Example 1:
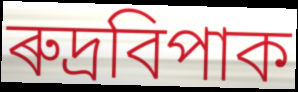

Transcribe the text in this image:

ৰুদ্ৰবিপাক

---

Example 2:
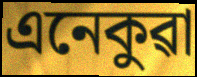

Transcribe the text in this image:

এনেকুৱা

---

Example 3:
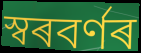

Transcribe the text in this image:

স্বৰবৰ্ণৰ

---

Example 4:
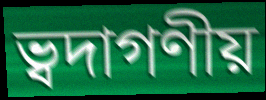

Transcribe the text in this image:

ভ্বদাগণীয়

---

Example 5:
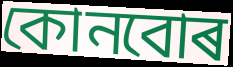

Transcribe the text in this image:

কোনবোৰ